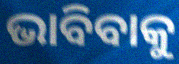
ଭାବିବାକୁ